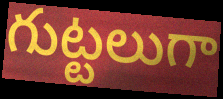
గుట్టలుగా